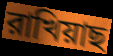
রাখিয়াছ